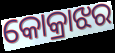
କୋକ୍ରାଝର